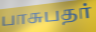
பாசுபதர்